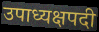
उपाध्यक्षपदी